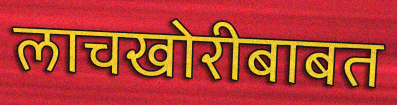
लाचखोरीबाबत